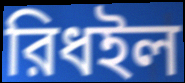
রিধইল